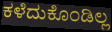
ಕಳೆದುಕೊಂಡಿಲ್ಲ